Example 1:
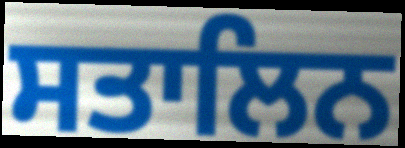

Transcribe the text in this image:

ਸਤਾਲਿਨ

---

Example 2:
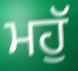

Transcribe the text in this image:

ਮਹੁੱ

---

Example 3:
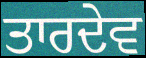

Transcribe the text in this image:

ਤਾਰਦੇਵ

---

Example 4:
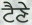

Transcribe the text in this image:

ਟੈਣੇ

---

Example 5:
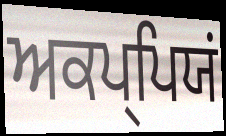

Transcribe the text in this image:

ਅਕਪ੍ਪਿਯਂ